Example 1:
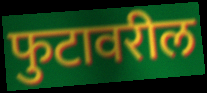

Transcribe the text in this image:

फुटावरील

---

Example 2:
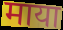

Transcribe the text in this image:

माया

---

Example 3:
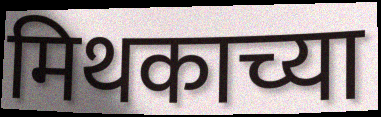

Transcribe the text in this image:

मिथकाच्या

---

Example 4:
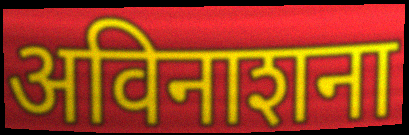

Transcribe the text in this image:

अविनाशना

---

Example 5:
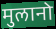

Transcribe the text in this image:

मुलानो